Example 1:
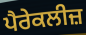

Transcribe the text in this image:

ਪੈਰੇਕਲੀਜ਼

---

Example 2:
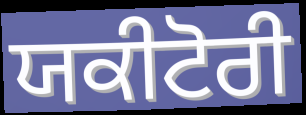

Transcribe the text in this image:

ਯਕੀਟੋਰੀ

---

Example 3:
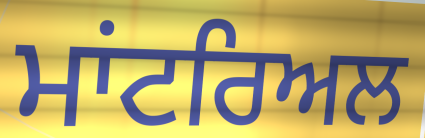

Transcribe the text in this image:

ਮਾਂਟਰਿਅਲ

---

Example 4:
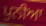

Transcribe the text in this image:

ਪੁਨੀਆ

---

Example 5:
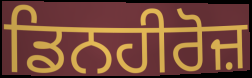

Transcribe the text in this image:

ਡਿਨਹੀਰੋਜ਼